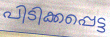
പിടിക്കപ്പെട്ട